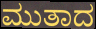
ಮುತಾದ